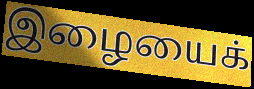
இழையைக்